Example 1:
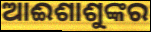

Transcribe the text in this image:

ଆଈଶାଶୁଙ୍କର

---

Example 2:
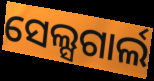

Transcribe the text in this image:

ସେଲ୍ସଗାର୍ଲ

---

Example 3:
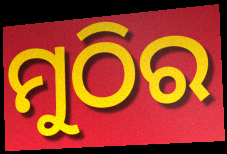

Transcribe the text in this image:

ମୁଠିର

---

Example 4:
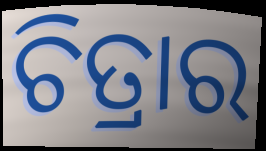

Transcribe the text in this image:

ଚିତ୍ରାର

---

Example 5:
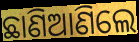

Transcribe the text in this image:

ଛାଣିଆଣିଲେ